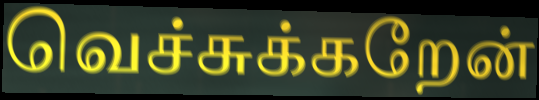
வெச்சுக்கறேன்